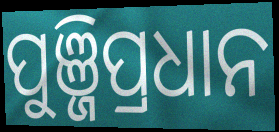
ପୁଞ୍ଜିପ୍ରଧାନ